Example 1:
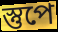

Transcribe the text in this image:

স্তুপে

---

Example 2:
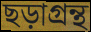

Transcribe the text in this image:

ছড়াগ্রন্থ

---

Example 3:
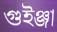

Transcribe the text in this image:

গুইঞ্জা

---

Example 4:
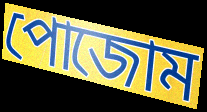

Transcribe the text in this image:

পোজোম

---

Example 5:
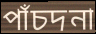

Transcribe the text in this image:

পাঁচদনা